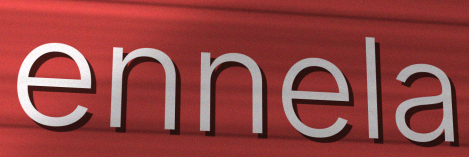
ennela